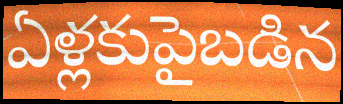
ఏళ్లకుపైబడిన